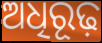
ଅଧିରୂଢ଼